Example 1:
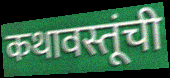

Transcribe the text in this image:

कथावस्तूंची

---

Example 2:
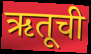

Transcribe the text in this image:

ऋतूची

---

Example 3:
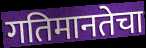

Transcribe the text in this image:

गतिमानतेचा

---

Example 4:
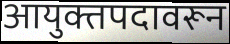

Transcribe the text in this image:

आयुक्तपदावरून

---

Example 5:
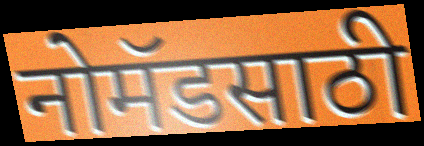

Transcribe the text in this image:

नोमॅडसाठी